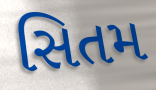
સિતમ